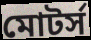
মোটর্স